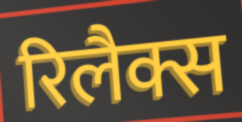
रिलैक्स